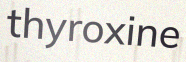
thyroxine